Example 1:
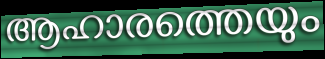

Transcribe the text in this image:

ആഹാരത്തെയും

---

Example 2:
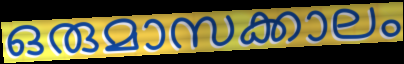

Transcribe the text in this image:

ഒരുമാസക്കാലം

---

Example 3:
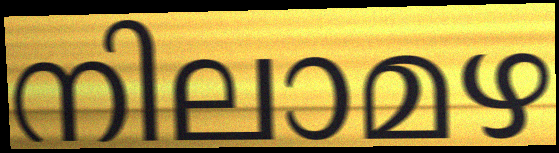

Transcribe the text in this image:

നിലാമഴ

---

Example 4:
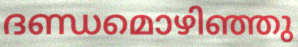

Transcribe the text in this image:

ദണ്ഡമൊഴിഞ്ഞു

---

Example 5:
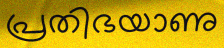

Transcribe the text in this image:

പ്രതിഭയാണു